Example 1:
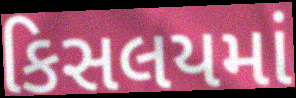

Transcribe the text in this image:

કિસલયમાં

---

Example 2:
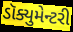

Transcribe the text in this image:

ડૉક્યુમેન્ટરી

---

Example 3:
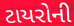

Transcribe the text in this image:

ટાયરોની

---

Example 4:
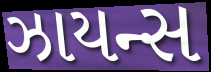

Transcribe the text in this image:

ઝાયન્સ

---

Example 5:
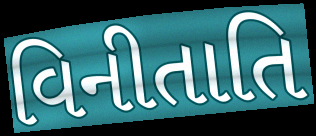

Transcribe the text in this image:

વિનીતાતિ